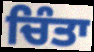
ਚਿੰਤਾ